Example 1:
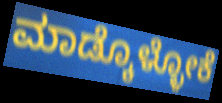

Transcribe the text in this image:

ಮಾಡ್ಕೊಳ್ಳೋಕೆ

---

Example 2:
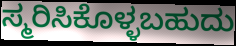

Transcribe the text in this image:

ಸ್ಮರಿಸಿಕೊಳ್ಳಬಹುದು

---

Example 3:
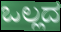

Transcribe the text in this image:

ಒಲ್ಲದ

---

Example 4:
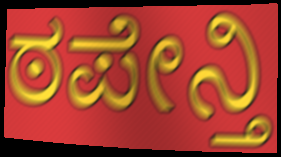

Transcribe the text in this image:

ಠಪೇನ್ತಿ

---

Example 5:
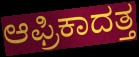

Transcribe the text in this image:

ಆಫ್ರಿಕಾದತ್ತ